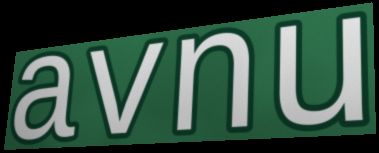
avnu